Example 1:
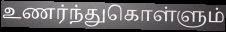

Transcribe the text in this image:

உணர்ந்துகொள்ளும்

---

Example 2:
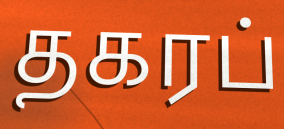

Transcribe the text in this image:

தகரப்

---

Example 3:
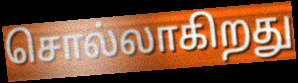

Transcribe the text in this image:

சொல்லாகிறது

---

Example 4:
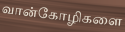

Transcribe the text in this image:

வான்கோழிகளை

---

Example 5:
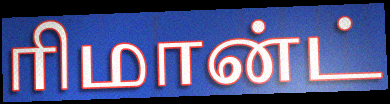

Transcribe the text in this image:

ரிமான்ட்